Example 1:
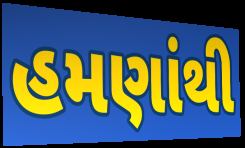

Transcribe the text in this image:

હમણાંથી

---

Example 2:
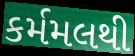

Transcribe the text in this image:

કર્મમલથી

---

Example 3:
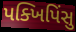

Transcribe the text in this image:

પક્ખિપિંસુ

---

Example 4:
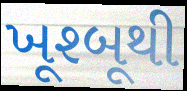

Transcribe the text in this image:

ખૂશ્બૂથી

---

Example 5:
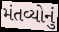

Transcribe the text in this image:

મંતવ્યોનું